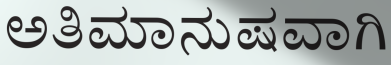
ಅತಿಮಾನುಷವಾಗಿ